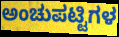
ಅಂಚುಪಟ್ಟಿಗಳ